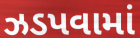
ઝડપવામાં